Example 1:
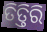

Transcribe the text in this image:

ତିତ୍ତିରି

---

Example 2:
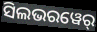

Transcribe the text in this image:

ସିଲଭରୱେର୍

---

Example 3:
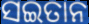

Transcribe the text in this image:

ସଇତାନ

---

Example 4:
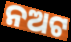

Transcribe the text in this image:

ନଅଟ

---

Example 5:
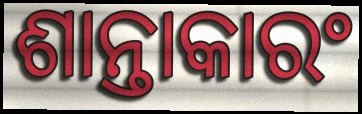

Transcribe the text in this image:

ଶାନ୍ତାକାରଂ